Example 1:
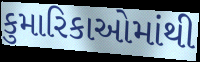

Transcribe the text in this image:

કુમારિકાઓમાંથી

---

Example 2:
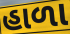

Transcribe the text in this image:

હાળા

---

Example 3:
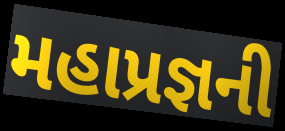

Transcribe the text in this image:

મહાપ્રજ્ઞની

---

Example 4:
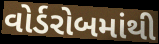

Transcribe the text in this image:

વોર્ડરોબમાંથી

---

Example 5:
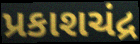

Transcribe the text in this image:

પ્રકાશચંદ્ર